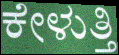
ಕೇಳುತ್ತಿ